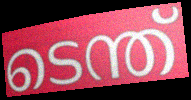
ടെന്ത്